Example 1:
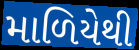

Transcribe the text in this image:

માળિયેથી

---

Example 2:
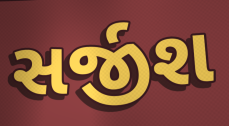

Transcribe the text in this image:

સર્જીશ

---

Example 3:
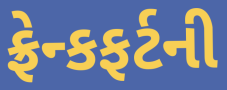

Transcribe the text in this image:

ફ્રેન્કફર્ટની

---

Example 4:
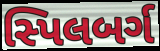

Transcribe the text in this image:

સ્પિલબર્ગ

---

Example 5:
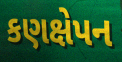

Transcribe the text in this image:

કણક્ષેપન